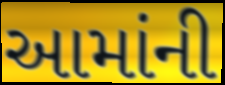
આમાંની